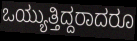
ಒಯ್ಯುತ್ತಿದ್ದರಾದರೂ